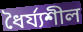
ধৈর্য্যশীল